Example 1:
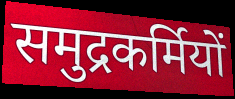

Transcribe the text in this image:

समुद्रकर्मियों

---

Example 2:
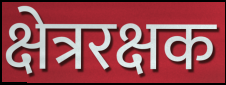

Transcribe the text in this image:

क्षेत्ररक्षक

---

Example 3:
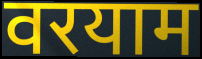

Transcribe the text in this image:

वरयाम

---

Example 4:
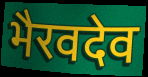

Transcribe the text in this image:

भैरवदेव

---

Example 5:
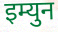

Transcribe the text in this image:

इम्‍युन